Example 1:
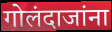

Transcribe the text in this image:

गोलंदाजांना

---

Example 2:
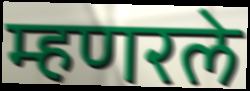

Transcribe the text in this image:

म्हणरले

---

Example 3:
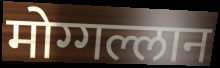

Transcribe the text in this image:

मोग्गल्लान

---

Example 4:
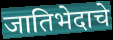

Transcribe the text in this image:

जातिभेदाचे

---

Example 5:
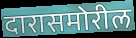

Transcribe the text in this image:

दारासमोरील